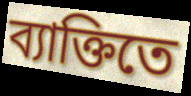
ব্যাক্তিতে